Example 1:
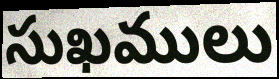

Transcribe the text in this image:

సుఖములు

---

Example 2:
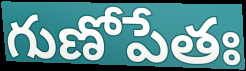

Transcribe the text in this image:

గుణోపేతః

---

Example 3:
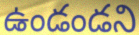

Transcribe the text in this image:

ఉండండని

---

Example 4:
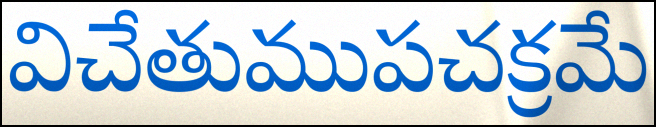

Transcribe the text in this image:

విచేతుముపచక్రమే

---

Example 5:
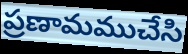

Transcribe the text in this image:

ప్రణామముచేసి